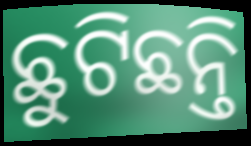
ଛୁଟିଛନ୍ତି